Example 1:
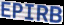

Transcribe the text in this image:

EPIRB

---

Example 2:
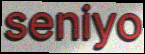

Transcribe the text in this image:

seniyo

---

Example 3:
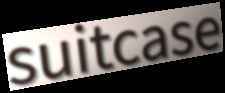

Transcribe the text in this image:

suitcase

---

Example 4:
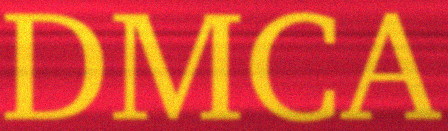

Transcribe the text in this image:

DMCA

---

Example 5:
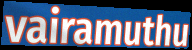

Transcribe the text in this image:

vairamuthu